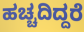
ಹಚ್ಚದಿದ್ದರೆ